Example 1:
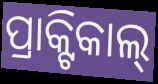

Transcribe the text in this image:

ପ୍ରାକ୍ଟିକାଲ୍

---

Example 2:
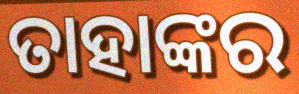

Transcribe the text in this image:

ତାହାଙ୍କର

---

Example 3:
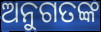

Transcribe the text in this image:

ଅନୁଗତଙ୍କ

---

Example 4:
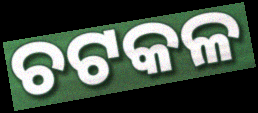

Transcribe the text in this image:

ଚଟକଳ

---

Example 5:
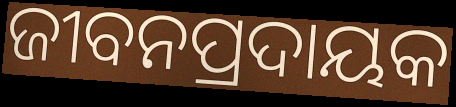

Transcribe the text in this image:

ଜୀବନପ୍ରଦାୟକ